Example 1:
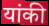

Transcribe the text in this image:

यांकी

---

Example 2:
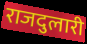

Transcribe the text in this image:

राजदुलारी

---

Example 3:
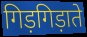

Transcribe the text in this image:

गिड़गिड़ाते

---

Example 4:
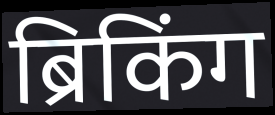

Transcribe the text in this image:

ब्रिकिंग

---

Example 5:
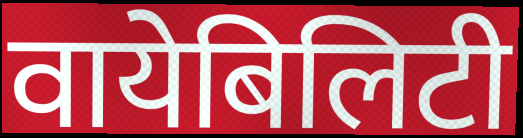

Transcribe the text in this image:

वायेबिलिटी